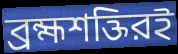
ব্রহ্মশক্তিরই